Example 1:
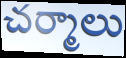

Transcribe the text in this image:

చర్మాలు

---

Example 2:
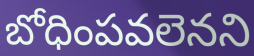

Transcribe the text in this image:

బోధింపవలెనని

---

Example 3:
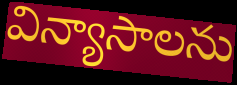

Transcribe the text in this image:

విన్యాసాలను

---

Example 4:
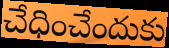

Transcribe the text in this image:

చేధించేందుకు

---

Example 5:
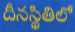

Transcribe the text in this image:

దీనస్థితిలో